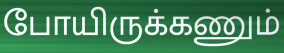
போயிருக்கணும்